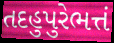
તદહુપુરેભત્તં